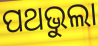
ପଥଭୁଲା